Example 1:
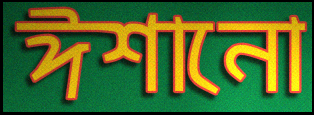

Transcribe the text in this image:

ঈশানো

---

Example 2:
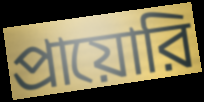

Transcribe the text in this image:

প্রায়োরি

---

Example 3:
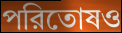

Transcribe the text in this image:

পরিতোষও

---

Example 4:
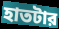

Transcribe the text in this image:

হাতটার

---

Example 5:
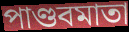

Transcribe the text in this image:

পাণ্ডবমাতা